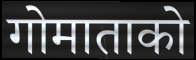
गोमाताको